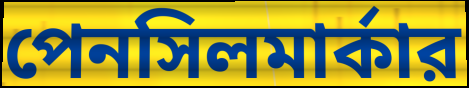
পেনসিলমার্কার